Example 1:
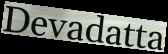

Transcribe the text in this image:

Devadatta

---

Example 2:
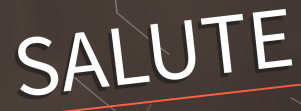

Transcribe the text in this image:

SALUTE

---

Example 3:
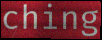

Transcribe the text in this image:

ching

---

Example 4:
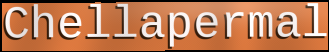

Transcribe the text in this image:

Chellapermal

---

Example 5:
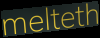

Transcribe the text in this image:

melteth